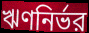
ঋণনির্ভর